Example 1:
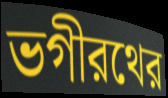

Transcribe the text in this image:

ভগীরথের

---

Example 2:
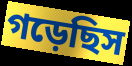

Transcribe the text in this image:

গড়েছিস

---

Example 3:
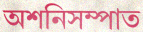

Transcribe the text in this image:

অশনিসম্পাত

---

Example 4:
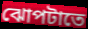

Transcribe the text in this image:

ঝোপটাতে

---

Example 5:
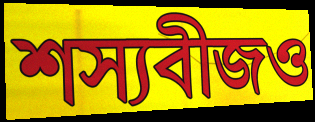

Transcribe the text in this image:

শস্যবীজও